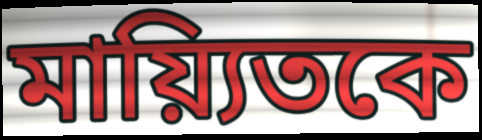
মায়্যিতকে